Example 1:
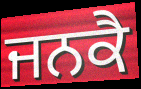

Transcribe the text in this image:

ਜਨਕੈ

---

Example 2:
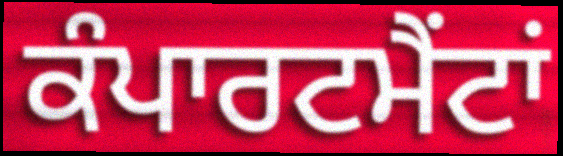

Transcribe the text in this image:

ਕੰਪਾਰਟਮੈਂਟਾਂ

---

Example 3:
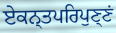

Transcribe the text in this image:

ਏਕਨ੍ਤਪਰਿਪੁਣ੍ਣਂ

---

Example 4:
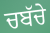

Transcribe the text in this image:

ਚਬੱਚੇ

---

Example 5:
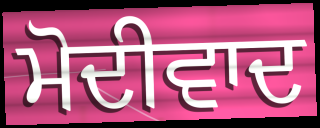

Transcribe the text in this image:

ਮੋਦੀਵਾਦ